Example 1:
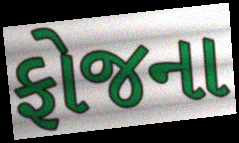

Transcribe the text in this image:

ફોજના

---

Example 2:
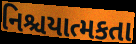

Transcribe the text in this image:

નિશ્ચયાત્મકતા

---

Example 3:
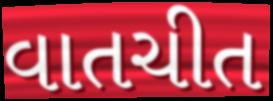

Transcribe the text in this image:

વાતચીત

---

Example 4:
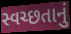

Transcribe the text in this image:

સ્વચ્છતાનું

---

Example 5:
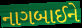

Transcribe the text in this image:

નાગબાઈને